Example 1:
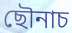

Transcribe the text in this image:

ছৌনাচ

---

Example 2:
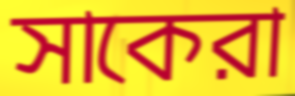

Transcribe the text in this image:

সাকেরা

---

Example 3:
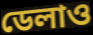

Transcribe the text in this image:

ডেলাও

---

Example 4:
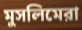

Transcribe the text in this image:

মুসলিমেরা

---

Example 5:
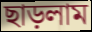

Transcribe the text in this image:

ছাড়লাম